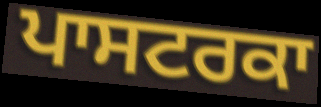
ਪਾਸਟਰਕਾ